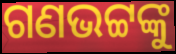
ଗଣଭଟ୍ଟଙ୍କୁ